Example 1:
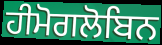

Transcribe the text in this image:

ਹੀਮੋਗਲੋਬਿਨ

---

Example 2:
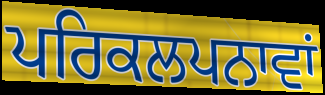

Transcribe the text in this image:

ਪਰਿਕਲਪਨਾਵਾਂ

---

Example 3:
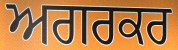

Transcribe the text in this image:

ਅਗਰਕਰ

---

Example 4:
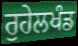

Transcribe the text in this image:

ਰੁਹੇਲਖੰਡ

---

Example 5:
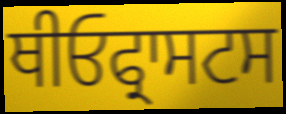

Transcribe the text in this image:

ਥੀਓਫ੍ਰਾਸਟਸ